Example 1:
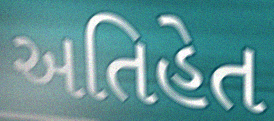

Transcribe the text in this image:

અતિહેત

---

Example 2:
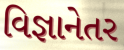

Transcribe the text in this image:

વિજ્ઞાનેતર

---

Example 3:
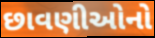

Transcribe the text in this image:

છાવણીઓનો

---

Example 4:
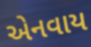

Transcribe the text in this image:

એનવાય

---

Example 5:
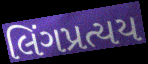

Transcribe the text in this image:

લિંગપ્રત્યય